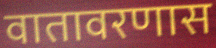
वातावरणास